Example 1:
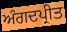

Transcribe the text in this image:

ਅੰਗਦਪ੍ਰੀਤ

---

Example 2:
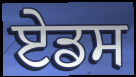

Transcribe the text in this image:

ਏਡਸ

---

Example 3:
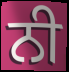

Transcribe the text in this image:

ਨੀ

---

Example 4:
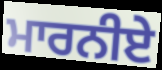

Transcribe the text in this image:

ਮਾਰਨੀਏ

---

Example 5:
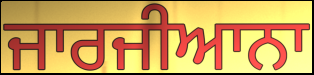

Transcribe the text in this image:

ਜਾਰਜੀਆਨਾ